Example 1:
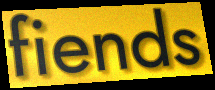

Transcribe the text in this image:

fiends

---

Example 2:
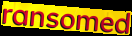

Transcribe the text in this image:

ransomed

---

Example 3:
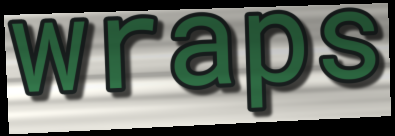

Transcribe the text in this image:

wraps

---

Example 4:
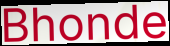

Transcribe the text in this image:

Bhonde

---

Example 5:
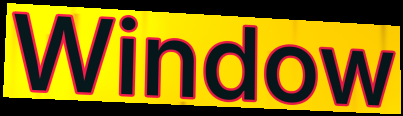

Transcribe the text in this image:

Window